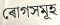
ৰোগসমূহ